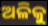
ଅଳିକୁ